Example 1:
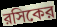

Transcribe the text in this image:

রসিকের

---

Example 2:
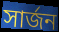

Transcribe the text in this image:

সার্জন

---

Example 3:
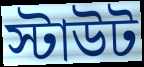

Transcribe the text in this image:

স্টাউট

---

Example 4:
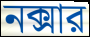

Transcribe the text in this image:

নক্সার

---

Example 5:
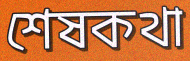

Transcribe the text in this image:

শেষকথা